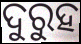
ଦୁରୁହ